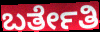
ಬರ್ತೇತಿ